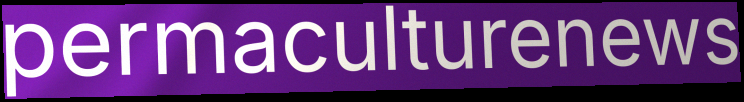
permaculturenews